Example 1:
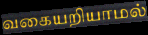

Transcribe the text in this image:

வகையறியாமல்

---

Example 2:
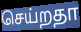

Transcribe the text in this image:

செய்றதா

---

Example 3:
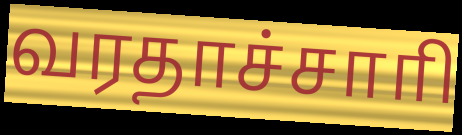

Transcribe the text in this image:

வரதாச்சாரி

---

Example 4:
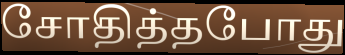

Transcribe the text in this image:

சோதித்தபோது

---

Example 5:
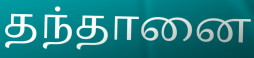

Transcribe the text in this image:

தந்தானை